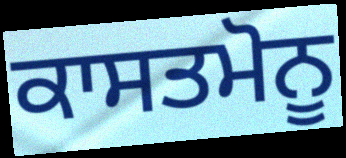
ਕਾਸਤਮੋਨੂ